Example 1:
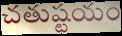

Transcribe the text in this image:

చతుష్టయం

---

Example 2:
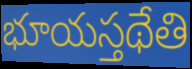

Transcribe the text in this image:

భూయస్తథేతి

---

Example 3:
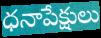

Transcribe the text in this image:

ధనాపేక్షులు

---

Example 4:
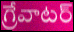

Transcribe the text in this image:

గ్రేవాటర్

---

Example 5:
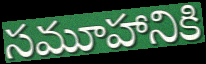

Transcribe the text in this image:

సమూహానికి